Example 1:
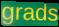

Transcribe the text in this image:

grads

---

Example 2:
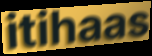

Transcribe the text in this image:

itihaas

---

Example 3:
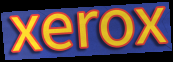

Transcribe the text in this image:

xerox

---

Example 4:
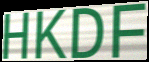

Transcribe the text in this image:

HKDF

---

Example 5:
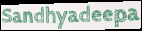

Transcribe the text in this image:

Sandhyadeepa